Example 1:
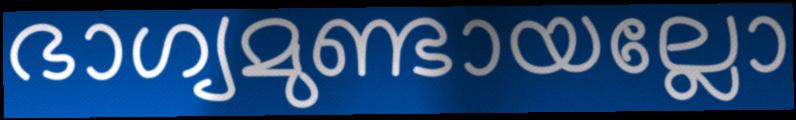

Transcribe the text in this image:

ഭാഗ്യമുണ്ടായല്ലോ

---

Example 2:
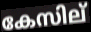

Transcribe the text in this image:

കേസില്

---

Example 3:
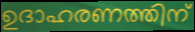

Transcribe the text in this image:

ഉദാഹരണത്തിന്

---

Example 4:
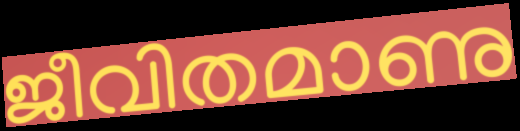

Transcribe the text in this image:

ജീവിതമാണു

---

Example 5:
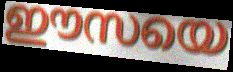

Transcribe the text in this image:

ഈസയെ